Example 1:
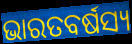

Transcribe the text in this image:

ଭାରତବର୍ଷସ୍ୟ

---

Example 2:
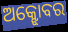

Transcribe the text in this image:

ଅକ୍ଝୋବର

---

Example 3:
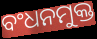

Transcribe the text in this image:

ବଂଧନମୁକ୍ତ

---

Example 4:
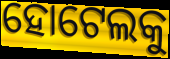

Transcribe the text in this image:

ହୋଟେଲକୁ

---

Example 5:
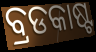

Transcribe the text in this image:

ବ୍ରଡକାଷ୍ଟ